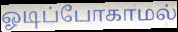
ஓடிப்போகாமல்